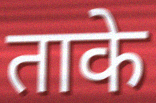
ताके